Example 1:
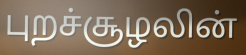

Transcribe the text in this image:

புறச்சூழலின்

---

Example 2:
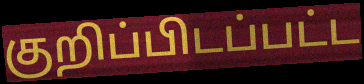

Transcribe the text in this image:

குறிப்பிடப்பட்ட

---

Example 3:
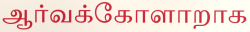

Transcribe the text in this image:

ஆர்வக்கோளாறாக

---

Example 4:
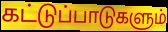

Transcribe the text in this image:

கட்டுப்பாடுகளும்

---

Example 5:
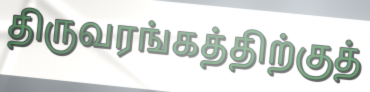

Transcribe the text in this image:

திருவரங்கத்திற்குத்